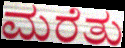
ಮರೆತು